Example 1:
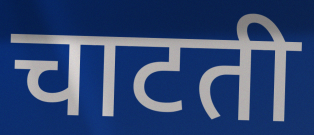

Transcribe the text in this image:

चाटती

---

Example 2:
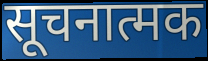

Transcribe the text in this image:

सूचनात्मक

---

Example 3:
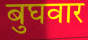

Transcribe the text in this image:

बुघवार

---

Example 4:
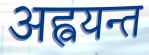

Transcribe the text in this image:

अह्वयन्त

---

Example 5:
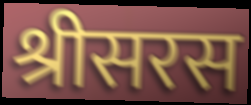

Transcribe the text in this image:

श्रीसरस